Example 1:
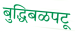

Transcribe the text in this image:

बुद्धिबळपटू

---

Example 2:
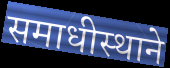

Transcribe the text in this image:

समाधीस्थाने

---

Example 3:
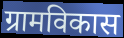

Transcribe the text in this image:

ग्रामविकास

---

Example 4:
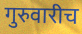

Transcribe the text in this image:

गुरुवारीच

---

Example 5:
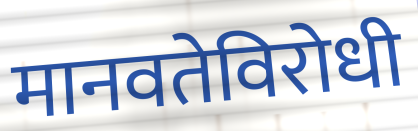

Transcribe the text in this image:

मानवतेविरोधी